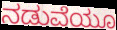
ನಡುವೆಯೂ